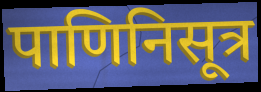
पाणिनिसूत्र